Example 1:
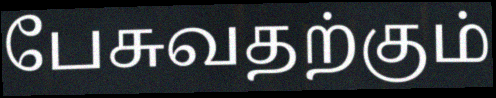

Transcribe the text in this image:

பேசுவதற்கும்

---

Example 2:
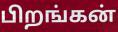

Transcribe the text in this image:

பிறங்கன்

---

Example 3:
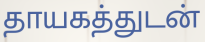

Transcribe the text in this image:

தாயகத்துடன்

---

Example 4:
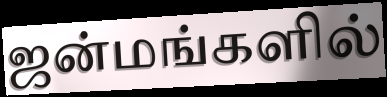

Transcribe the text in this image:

ஜன்மங்களில்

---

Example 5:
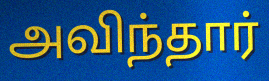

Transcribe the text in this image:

அவிந்தார்